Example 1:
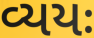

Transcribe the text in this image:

વ્યયઃ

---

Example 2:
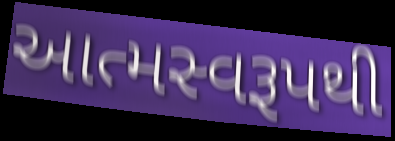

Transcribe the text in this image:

આત્મસ્વરૂપથી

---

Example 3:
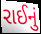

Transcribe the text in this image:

રાઈનું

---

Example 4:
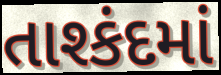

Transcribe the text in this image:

તાશ્કંદમાં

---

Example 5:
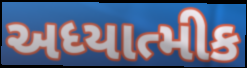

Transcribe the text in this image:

અધ્યાત્મીક